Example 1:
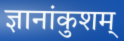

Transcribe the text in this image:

ज्ञानांकुशम्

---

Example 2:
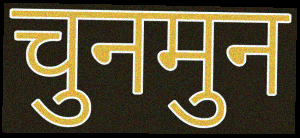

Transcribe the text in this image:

चुनमुन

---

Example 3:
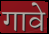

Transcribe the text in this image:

गावे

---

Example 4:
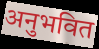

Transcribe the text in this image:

अनुभवित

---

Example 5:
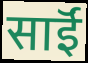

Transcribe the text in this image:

साईॅ